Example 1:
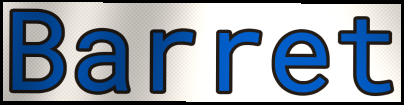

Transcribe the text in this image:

Barret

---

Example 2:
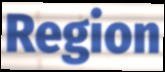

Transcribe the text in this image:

Region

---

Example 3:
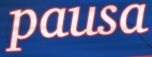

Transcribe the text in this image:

pausa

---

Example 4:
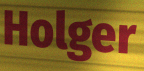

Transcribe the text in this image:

Holger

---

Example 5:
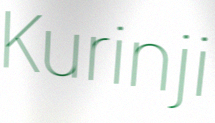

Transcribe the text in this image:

Kurinji